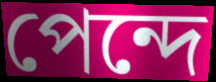
পেন্দে